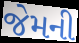
જેમની